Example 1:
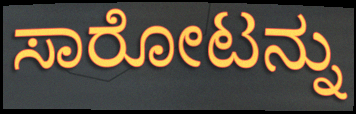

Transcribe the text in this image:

ಸಾರೋಟನ್ನು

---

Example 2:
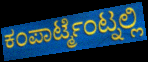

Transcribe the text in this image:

ಕಂಪಾರ್ಟ್ಮೆಂಟ್ನಲ್ಲಿ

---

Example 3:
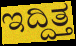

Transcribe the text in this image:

ಇದ್ದಿತ್ತ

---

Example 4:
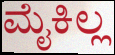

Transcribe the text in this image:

ಮೈಕಿಲ್ಲ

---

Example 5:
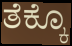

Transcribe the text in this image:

ತೆಕ್ಕೊ